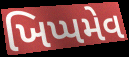
ખિપ્પમેવ